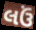
લઉં